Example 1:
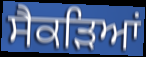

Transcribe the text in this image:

ਸੈਕੜਿਆਂ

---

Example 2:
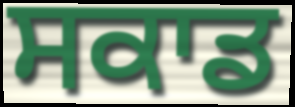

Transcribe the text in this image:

ਸਕਾਡ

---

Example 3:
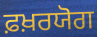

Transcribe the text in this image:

ਫ਼ਖ਼ਰਯੋਗ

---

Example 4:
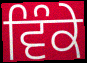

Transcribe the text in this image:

ਵਿੰਕੇ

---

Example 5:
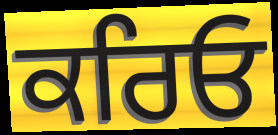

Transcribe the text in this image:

ਕਰਿਓ